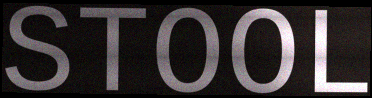
STOOL